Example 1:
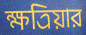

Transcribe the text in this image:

ক্ষত্রিয়ার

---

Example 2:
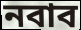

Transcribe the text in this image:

নবাব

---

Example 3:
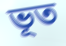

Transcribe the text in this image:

ভূত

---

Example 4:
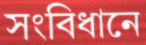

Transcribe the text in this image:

সংবিধানে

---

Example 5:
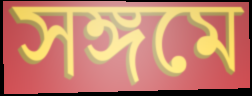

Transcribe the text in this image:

সঙ্গমে